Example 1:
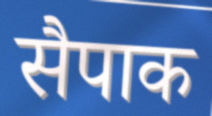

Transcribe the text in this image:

सैपाक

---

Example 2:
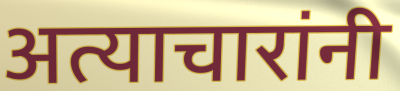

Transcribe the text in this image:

अत्याचारांनी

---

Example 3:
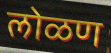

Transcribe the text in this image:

लोळण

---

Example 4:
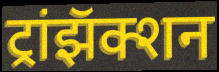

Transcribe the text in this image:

ट्रांझॅक्शन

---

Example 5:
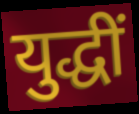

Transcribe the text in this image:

युद्धीं